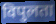
विपुलता